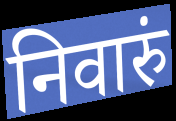
निवारुं